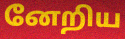
னேறிய